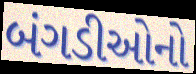
બંગડીઓનો